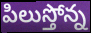
పిలుస్తోన్న